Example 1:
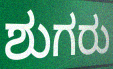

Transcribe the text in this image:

ಶುಗರು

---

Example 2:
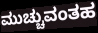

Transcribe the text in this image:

ಮುಚ್ಚುವಂತಹ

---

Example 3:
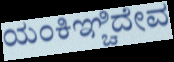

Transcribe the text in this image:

ಯಂಕಿಞ್ಚಿದೇವ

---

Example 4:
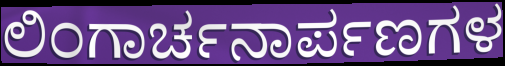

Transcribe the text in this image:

ಲಿಂಗಾರ್ಚನಾರ್ಪಣಗಳ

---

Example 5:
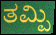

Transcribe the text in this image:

ತಮ್ಪಿ